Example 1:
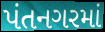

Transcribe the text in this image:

પંતનગરમાં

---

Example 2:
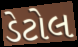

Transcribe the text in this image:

ડેટોલ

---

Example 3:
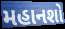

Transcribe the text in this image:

મહાનશો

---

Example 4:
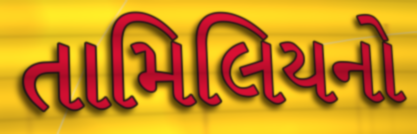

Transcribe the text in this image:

તામિલિયનો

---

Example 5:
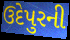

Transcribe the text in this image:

ઉદેપુરની